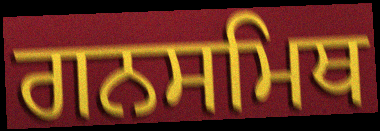
ਗਨਸਮਿਥ